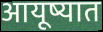
आयूष्यात